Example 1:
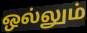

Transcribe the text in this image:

ஒல்லும்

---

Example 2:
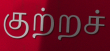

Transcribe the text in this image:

குற்றச்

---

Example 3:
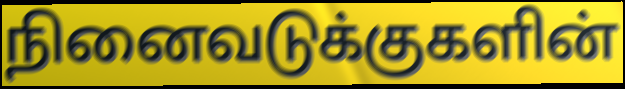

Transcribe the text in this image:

நினைவடுக்குகளின்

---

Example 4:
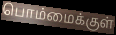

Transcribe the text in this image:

பொம்மைக்குள்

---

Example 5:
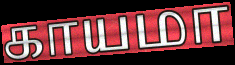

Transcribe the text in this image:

காயமா